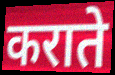
कराते